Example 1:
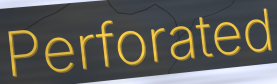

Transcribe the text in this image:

Perforated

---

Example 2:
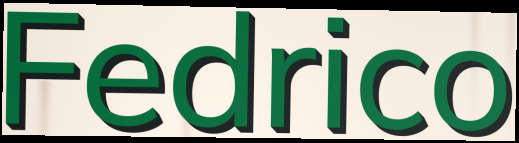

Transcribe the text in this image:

Fedrico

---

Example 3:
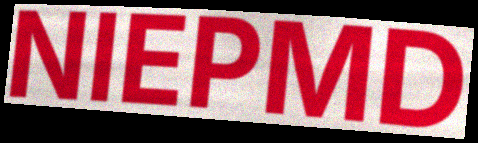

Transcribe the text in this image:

NIEPMD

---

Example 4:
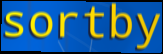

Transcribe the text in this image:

sortby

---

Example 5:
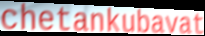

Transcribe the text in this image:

chetankubavat